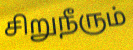
சிறுநீரும்